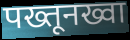
पख्तूनख्वा